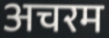
अचरम